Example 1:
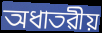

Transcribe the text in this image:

অধাতৱীয়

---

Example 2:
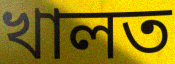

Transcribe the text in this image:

খালত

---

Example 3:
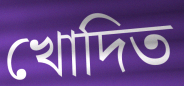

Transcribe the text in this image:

খোদিত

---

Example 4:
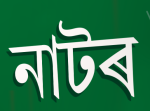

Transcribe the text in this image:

নাটৰ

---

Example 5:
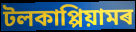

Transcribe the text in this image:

টলকাপ্পিয়ামৰ